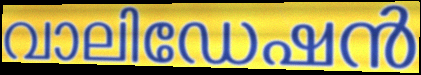
വാലിഡേഷൻ